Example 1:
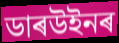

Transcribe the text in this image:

ডাৰউইনৰ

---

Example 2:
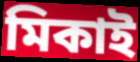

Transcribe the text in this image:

মিকাই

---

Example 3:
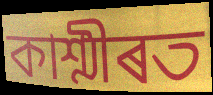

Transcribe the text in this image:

কাশ্মীৰত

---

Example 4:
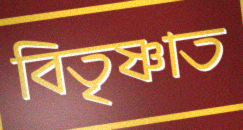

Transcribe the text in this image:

বিতৃষ্ণাত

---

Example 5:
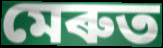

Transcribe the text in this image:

মেৰুত